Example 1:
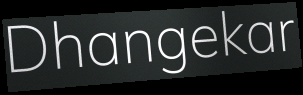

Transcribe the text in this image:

Dhangekar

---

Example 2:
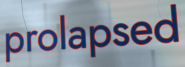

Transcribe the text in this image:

prolapsed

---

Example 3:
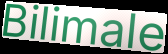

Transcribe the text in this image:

Bilimale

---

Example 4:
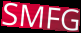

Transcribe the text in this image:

SMFG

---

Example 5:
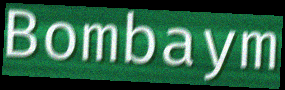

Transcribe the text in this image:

Bombaym